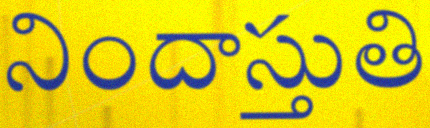
నిందాస్తుతి